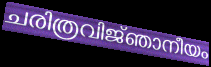
ചരിത്രവിജ്‌ഞാനീയം